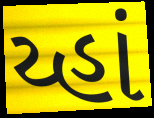
ય્હાં